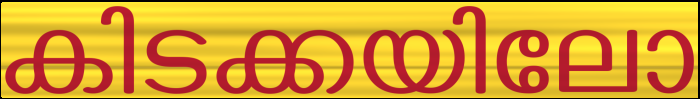
കിടക്കയിലോ